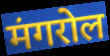
मंगरोल